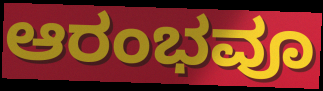
ಆರಂಭವೂ